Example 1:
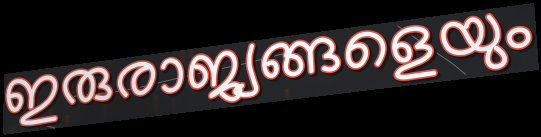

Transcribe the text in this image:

ഇരുരാജ്യങ്ങളെയും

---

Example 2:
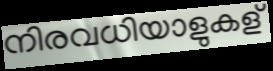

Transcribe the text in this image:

നിരവധിയാളുകള്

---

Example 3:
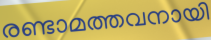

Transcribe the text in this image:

രണ്ടാമത്തവനായി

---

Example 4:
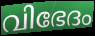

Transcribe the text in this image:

വിഭേദം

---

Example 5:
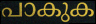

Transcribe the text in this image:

പാകുക